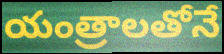
యంత్రాలతోనే